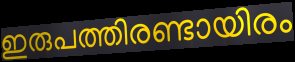
ഇരുപത്തിരണ്ടായിരം